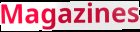
Magazines